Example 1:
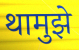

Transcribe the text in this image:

थामुझे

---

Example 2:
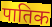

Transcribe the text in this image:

पातिक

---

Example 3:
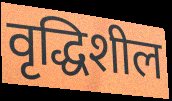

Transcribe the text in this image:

वृद्धिशील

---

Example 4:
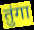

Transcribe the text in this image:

तुंगा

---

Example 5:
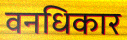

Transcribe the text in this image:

वनधिकार